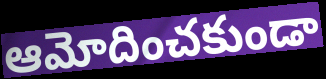
ఆమోదించకుండా